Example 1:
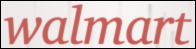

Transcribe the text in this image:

walmart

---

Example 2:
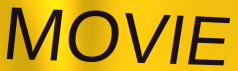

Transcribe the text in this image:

MOVIE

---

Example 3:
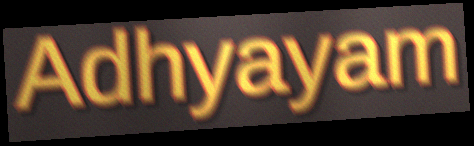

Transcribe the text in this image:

Adhyayam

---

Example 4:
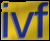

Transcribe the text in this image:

ivf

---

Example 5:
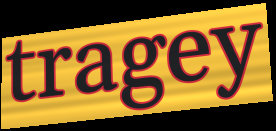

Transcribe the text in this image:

tragey